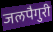
जलपैगुरी